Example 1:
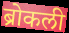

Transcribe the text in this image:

ब्रोकली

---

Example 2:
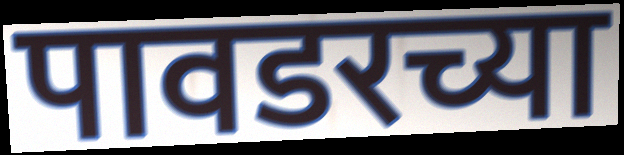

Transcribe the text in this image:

पावडरच्या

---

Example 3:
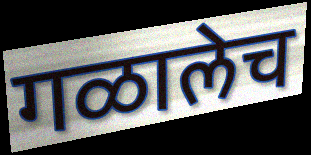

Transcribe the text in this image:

गळालेच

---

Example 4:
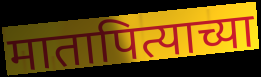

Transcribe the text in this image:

मातापित्याच्या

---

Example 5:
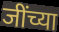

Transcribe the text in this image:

जींच्या